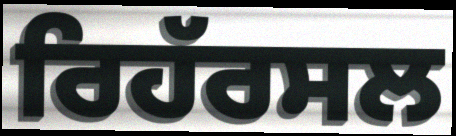
ਰਿਹੱਰਸਲ